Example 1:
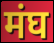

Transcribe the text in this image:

मंघ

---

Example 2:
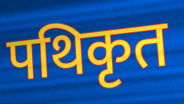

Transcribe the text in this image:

पथिकृत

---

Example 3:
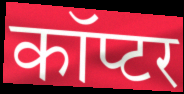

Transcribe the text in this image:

कॉप्टर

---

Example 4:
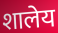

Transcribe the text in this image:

शालेय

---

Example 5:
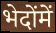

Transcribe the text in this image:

भेदोंमें